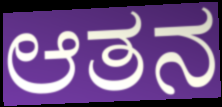
ಆತನ